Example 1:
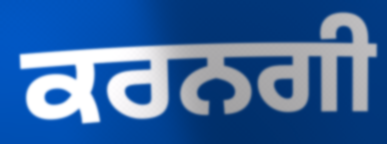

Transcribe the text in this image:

ਕਰਨਗੀ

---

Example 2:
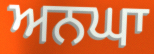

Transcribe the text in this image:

ਅਨਘਾ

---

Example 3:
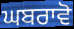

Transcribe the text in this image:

ਘਬਰਾਵੋ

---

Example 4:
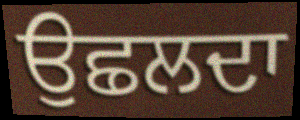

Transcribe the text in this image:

ਉਛਲਦਾ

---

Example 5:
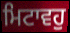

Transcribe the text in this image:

ਮਿਟਾਵਹੁ